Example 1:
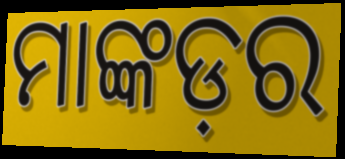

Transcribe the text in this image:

ମାଙ୍କଡ଼ର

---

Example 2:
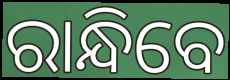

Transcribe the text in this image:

ରାନ୍ଧିବେ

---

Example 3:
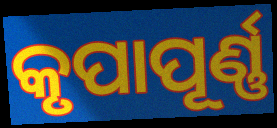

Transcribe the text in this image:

କୃପାପୂର୍ଣ୍ଣ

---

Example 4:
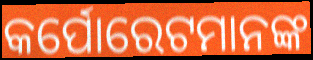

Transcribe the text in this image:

କର୍ପୋରେଟମାନଙ୍କ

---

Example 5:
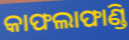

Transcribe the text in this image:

କାଫଲାଫାଣ୍ଡି